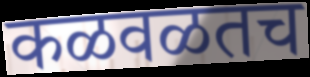
कळवळतच